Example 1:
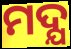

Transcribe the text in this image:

ମଦ୍ଯ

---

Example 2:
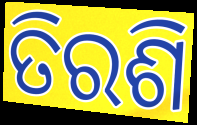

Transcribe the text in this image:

ତିରଶି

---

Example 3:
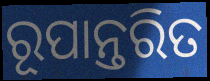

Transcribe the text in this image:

ରୂପାନ୍ତରିତ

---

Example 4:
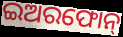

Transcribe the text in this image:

ଇଅରଫୋନ୍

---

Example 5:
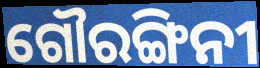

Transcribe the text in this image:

ଗୌରଙ୍ଗିନୀ